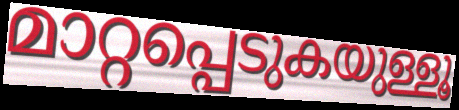
മാറ്റപ്പെടുകയുള്ളൂ